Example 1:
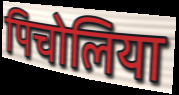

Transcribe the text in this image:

पिचोलिया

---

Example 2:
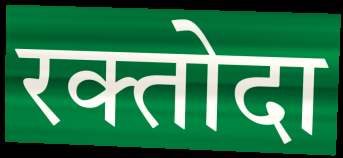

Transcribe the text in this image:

रक्तोदा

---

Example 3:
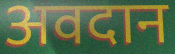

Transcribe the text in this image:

अवदान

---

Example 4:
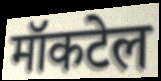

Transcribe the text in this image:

मॉकटेल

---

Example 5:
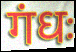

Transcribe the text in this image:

गंधः